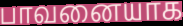
பாவனையாக